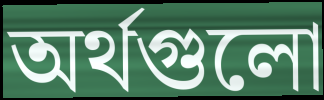
অর্থগুলো